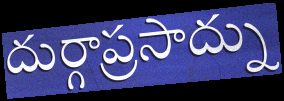
దుర్గాప్రసాద్ను